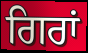
ਗਿਰਾਂ